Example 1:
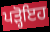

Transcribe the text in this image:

ਪੜ੍ਹੋਇਹ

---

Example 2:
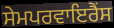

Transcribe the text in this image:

ਸੇਮਪਰਵਾਇਰੈਂਸ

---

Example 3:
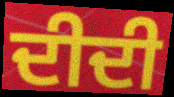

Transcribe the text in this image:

ਦੀਦੀ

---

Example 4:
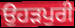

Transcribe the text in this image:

ਉਹੜਪੁਰੀ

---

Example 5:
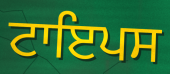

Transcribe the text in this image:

ਟਾਇਪਸ